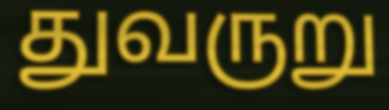
துவருறு